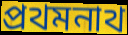
প্রথমনাথ